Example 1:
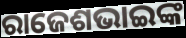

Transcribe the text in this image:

ରାଜେଶଭାଇଙ୍କ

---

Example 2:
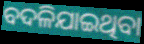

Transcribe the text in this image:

ବଦଳିଯାଇଥିବା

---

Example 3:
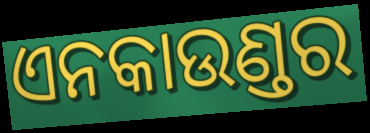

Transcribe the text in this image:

ଏନକାଉଣ୍ଡର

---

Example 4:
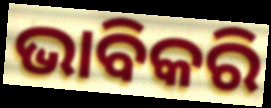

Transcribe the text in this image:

ଭାବିକରି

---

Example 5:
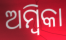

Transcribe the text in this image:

ଅମ୍ବିକା